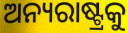
ଅନ୍ୟରାଷ୍ଟ୍ରକୁ